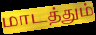
மாடத்தும்